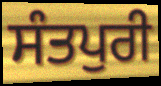
ਸੰਤਪੁਰੀ